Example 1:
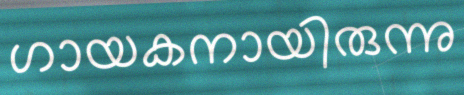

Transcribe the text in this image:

ഗായകനായിരുന്നു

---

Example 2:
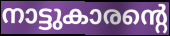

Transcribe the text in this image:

നാട്ടുകാരന്റെ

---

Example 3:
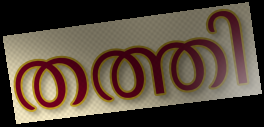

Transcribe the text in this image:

തത്തി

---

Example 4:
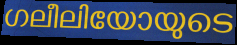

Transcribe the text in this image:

ഗലീലിയോയുടെ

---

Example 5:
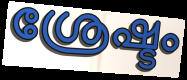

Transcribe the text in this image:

ശ്രേഷ്ടം